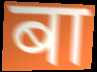
बा